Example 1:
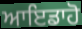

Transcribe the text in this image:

ਆਇਡਾਹੋ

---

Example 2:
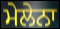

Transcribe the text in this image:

ਮੇਲੇਨਾ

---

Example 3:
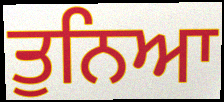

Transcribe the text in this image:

ਤੁਨਿਆ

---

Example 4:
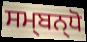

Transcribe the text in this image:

ਸਮ੍ਬਨ੍ਧੋ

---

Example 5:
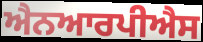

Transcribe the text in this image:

ਐਨਆਰਪੀਐਸ